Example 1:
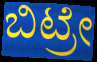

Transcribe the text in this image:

ಬಿಟ್ರೇ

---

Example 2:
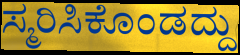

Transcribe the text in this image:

ಸ್ಮರಿಸಿಕೊಂಡದ್ದು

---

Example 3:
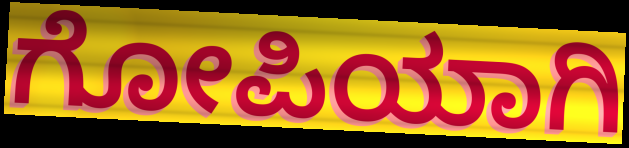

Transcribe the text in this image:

ಗೋಪಿಯಾಗಿ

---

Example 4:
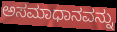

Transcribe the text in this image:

ಅಸಮಾಧಾನವನ್ನು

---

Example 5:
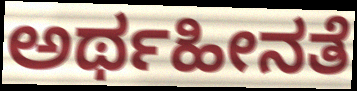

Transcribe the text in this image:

ಅರ್ಥಹೀನತೆ